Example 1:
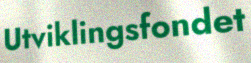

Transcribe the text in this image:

Utviklingsfondet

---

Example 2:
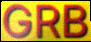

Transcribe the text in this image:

GRB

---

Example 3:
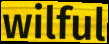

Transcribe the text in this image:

wilful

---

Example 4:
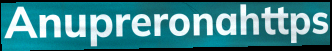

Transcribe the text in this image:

Anupreronahttps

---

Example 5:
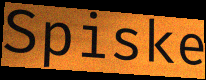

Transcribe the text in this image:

Spiske